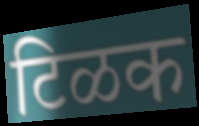
टिळक